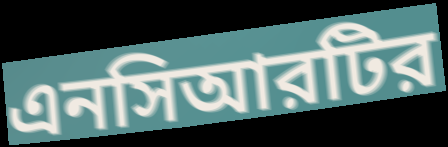
এনসিআরটির